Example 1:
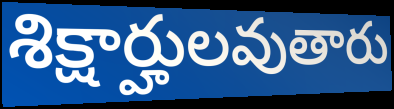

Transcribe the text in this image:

శిక్షార్హులవుతారు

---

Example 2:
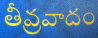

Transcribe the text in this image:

తీవ్రవాదం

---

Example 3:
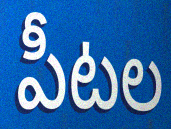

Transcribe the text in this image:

పీటల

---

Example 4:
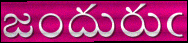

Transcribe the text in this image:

జందురుఁ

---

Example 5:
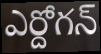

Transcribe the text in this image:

ఎర్దోగన్